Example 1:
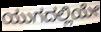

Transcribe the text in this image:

ಯುಗದಲ್ಲಿಯೇ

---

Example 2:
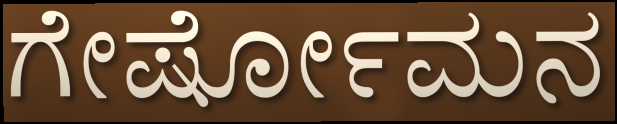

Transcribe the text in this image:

ಗೇರ್ಷೋಮನ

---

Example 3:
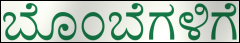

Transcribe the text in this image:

ಬೊಂಬೆಗಳಿಗೆ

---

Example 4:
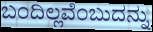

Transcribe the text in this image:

ಬಂದಿಲ್ಲವೆಂಬುದನ್ನು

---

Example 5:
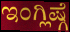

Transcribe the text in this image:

ಇಂಗ್ಲಿಷ್ಗೆ